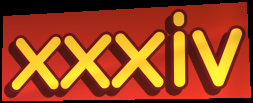
xxxiv